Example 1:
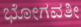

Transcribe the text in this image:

ಭೋಗವತೀ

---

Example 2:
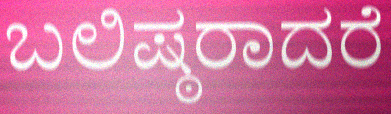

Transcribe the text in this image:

ಬಲಿಷ್ಠರಾದರೆ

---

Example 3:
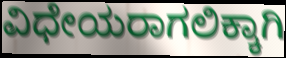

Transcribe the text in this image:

ವಿಧೇಯರಾಗಲಿಕ್ಕಾಗಿ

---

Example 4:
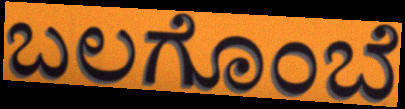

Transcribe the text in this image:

ಬಲಗೊಂಬೆ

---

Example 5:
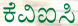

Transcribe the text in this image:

ಕೆವಿಐಸಿ